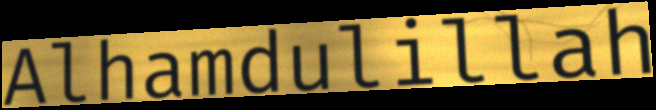
Alhamdulillah